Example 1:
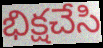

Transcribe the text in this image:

భిక్షచేసి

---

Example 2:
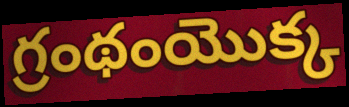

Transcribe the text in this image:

గ్రంథంయొక్క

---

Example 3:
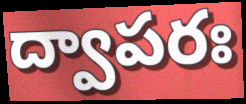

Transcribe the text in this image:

ద్వాపరః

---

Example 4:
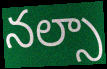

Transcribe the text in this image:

నల్సా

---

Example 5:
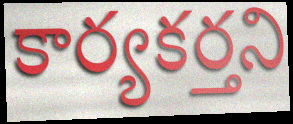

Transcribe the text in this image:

కార్యకర్తని